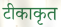
टीकाकृत